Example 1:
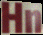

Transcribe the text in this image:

Hn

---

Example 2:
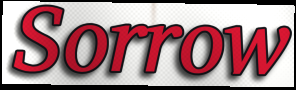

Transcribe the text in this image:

Sorrow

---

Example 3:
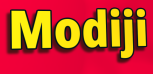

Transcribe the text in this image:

Modiji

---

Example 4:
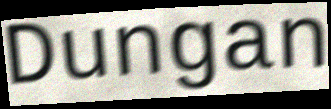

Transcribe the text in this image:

Dungan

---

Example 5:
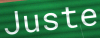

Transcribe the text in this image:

Juste